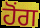
ਹੋਂਗ